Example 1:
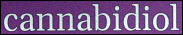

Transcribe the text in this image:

cannabidiol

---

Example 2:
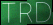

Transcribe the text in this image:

TRD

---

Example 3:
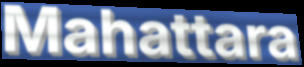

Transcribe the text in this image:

Mahattara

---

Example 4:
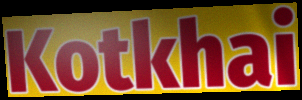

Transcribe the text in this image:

Kotkhai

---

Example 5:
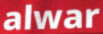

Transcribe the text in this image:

alwar